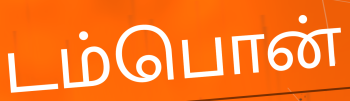
டம்பொன்